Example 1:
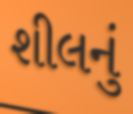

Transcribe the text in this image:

શીલનું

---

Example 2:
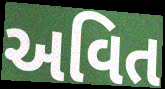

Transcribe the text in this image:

અવિત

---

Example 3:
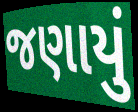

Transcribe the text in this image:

જણાયું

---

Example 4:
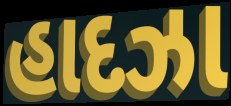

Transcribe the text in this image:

હાદઝા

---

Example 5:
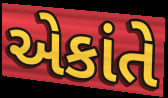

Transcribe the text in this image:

એકાંતે